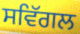
ਸਵਿੱਗਲ